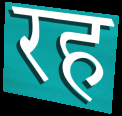
रह